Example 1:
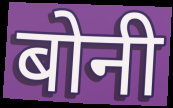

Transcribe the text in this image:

बोनी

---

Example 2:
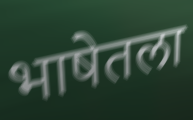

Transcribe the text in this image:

भाषेतला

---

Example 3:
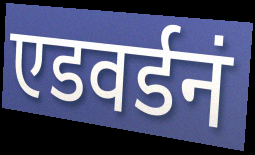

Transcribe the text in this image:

एडवर्डनं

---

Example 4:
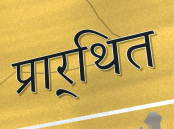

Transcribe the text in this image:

प्रार्थित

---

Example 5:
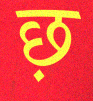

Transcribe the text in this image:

छ़